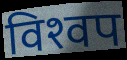
विश्वप